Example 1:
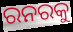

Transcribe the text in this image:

ରନରକୁ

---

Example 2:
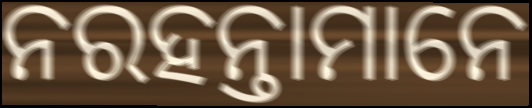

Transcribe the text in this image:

ନରହନ୍ତାମାନେ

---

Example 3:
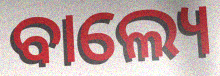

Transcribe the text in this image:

ବାଲ୍ୟେ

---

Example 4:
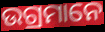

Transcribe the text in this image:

ଉଗ୍ରମାନେ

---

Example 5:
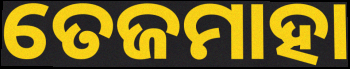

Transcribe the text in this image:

ତେଜମାହା